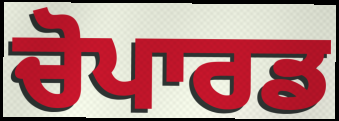
ਚੋਪਾਰਡ